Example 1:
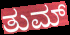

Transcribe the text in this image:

ತುಮ್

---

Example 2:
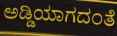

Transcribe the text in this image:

ಅಡ್ಡಿಯಾಗದಂತೆ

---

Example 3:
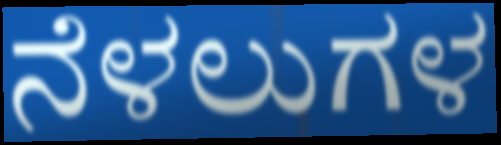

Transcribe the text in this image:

ನೆಳಲುಗಳ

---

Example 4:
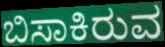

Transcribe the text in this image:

ಬಿಸಾಕಿರುವ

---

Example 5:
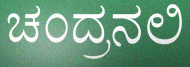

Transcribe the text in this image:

ಚಂದ್ರನಲಿ